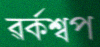
ৱৰ্কশ্বপ